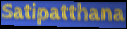
Satipatthana